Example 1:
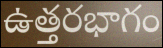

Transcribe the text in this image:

ఉత్తరభాగం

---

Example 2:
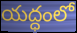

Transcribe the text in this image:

యద్ధంలో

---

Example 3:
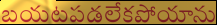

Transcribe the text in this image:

బయటపడలేకపోయాను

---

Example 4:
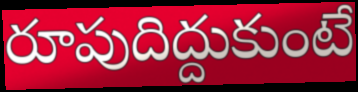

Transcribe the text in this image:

రూపుదిద్దుకుంటే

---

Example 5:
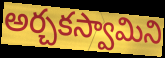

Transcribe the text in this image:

అర్చకస్వామిని